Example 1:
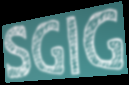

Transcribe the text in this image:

SGIG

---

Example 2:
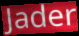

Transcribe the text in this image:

Jader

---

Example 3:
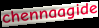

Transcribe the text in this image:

chennaagide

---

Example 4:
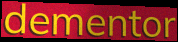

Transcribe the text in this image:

dementor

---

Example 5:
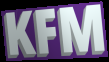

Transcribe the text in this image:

KFM